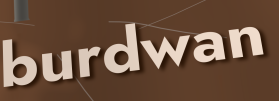
burdwan